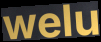
welu